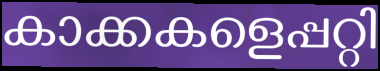
കാക്കകളെപ്പറ്റി